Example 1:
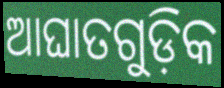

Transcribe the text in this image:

ଆଘାତଗୁଡ଼ିକ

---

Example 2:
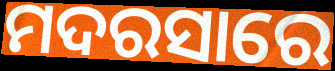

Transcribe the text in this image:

ମଦରସାରେ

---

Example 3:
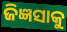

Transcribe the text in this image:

ଜିଜ୍ଞସାକୁ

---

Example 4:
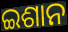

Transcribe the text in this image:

ଇଶାନ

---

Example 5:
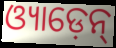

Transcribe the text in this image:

ଓ୍ୟାଡ଼େନ୍